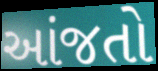
આંજતો